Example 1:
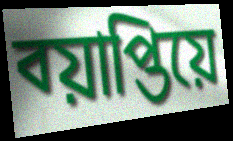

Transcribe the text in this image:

ব্য়াপ্তিয়ে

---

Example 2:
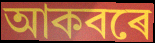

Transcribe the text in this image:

আকবৰে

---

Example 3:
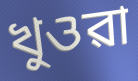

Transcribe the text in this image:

খুওৱা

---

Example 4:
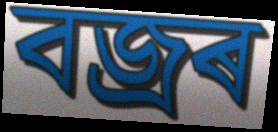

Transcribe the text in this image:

বজ্ৰৰ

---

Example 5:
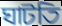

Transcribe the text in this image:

ঘাটতি